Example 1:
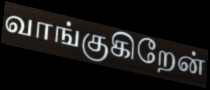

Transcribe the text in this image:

வாங்குகிறேன்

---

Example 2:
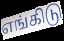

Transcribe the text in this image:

எங்கிடு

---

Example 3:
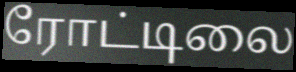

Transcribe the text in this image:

ரோட்டிலை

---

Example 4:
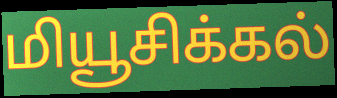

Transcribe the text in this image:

மியூசிக்கல்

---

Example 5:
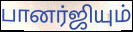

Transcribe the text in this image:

பானர்ஜியும்